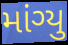
માંગ્યુ